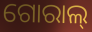
ଗୋରାଲ୍